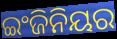
ଇଂଜିନିୟର